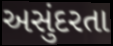
અસુંદરતા